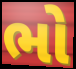
ભો